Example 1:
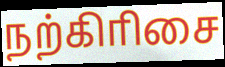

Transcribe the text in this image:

நற்கிரிசை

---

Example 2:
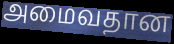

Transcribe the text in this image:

அமைவதான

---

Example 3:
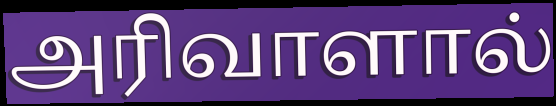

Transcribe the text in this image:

அரிவாளால்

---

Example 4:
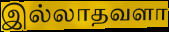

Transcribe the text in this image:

இல்லாதவளா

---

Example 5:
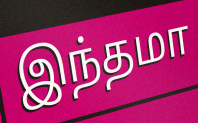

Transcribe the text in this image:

இந்தமா